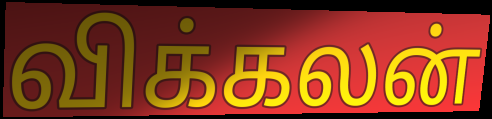
விக்கலன்